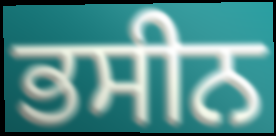
ਭਸੀਨ